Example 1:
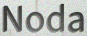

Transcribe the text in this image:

Noda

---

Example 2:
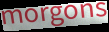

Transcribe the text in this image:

morgons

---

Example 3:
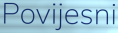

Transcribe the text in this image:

Povijesni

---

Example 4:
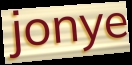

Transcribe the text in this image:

jonye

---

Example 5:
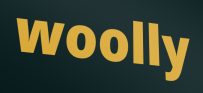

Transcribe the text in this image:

woolly